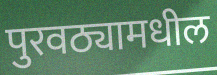
पुरवठ्यामधील